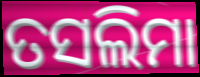
ତସଲିମା